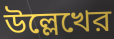
উল্লেখের